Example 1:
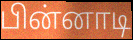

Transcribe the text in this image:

பின்னாடி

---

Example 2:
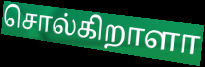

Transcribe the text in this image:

சொல்கிறாளா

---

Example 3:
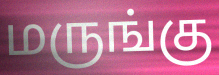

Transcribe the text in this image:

மருங்கு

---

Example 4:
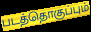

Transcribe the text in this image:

படத்தொகுப்பும்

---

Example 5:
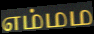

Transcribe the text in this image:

எம்மம